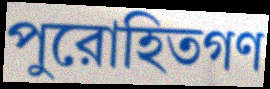
পুরোহিতগণ